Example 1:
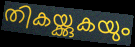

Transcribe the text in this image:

തികയ്ക്കുകയും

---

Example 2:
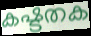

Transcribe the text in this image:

കഷ്ടതക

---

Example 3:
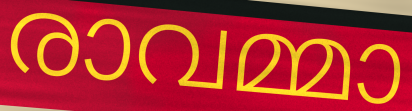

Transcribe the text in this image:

രാവമ്മാ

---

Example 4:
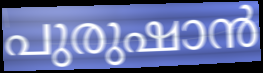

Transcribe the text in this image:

പുരുഷാൻ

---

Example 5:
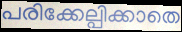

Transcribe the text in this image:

പരിക്കേല്പിക്കാതെ